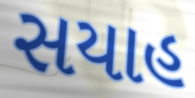
સયાહ